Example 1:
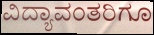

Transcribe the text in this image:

ವಿದ್ಯಾವಂತರಿಗೂ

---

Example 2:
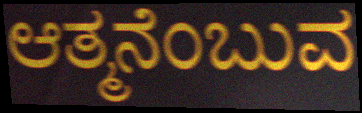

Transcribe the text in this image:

ಆತ್ಮನೆಂಬುವ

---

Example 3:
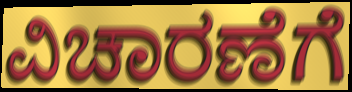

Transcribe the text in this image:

ವಿಚಾರಣೆಗೆ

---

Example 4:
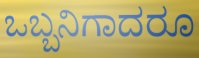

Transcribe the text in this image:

ಒಬ್ಬನಿಗಾದರೂ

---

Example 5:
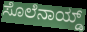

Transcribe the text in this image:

ಸೊಲೆನಾಯ್ಡ್